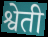
श्वेती